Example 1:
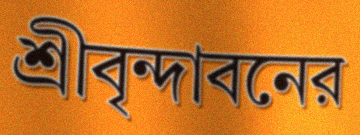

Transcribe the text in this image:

শ্রীবৃন্দাবনের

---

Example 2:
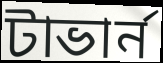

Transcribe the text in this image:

টাভার্ন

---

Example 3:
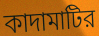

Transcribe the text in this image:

কাদামাটির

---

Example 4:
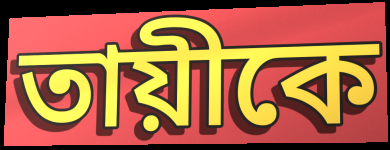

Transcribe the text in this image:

তায়ীকে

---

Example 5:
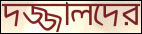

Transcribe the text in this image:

দজ্জালদের